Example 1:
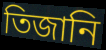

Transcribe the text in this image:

তিজানি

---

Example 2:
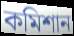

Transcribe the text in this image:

কমিশান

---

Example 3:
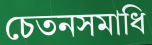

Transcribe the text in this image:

চেতনসমাধি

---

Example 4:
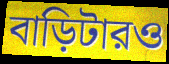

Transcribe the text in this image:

বাড়িটারও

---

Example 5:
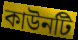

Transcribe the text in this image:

কাউনটি